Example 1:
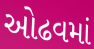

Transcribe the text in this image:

ઓઢવમાં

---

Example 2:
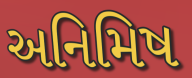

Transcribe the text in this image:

અનિમિષ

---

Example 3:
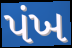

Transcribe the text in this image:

પંખ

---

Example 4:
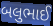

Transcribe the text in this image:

બલુભાઈ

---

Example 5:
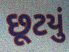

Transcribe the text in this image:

છૂટયું